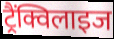
ट्रैंक्विलाइज